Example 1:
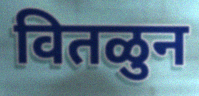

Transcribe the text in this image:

वितळुन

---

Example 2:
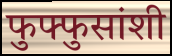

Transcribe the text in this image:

फुफ्फुसांशी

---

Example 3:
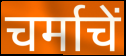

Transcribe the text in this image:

चर्माचें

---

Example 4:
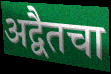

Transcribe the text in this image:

अद्वैतचा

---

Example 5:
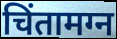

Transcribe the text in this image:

चिंतामग्न